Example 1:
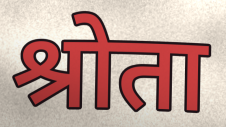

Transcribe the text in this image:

श्रोता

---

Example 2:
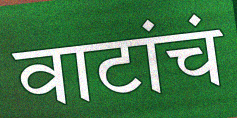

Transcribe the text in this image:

वाटांचं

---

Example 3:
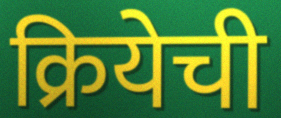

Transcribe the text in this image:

क्रियेची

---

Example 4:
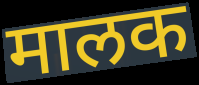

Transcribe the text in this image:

मालक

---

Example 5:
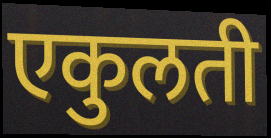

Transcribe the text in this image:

एकुलती